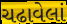
ચઢાવેલાં